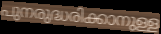
പുനരുദ്ധരിക്കാനുള്ള